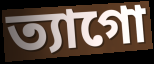
ত্যাগো